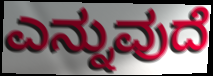
ಎನ್ನುವುದೆ